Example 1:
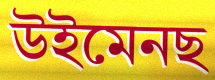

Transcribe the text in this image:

উইমেনছ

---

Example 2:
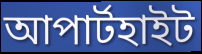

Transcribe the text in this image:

আপাৰ্টহাইট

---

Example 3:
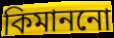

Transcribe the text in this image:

কিমাননো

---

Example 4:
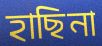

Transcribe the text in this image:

হাছিনা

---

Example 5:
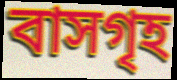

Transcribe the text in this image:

বাসগৃহ